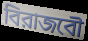
বিরাজবৌ